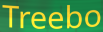
Treebo